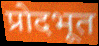
प्रोदभूत